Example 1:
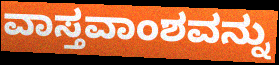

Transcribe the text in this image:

ವಾಸ್ತವಾಂಶವನ್ನು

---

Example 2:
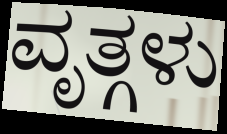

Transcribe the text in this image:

ವೃತ್ಗಳು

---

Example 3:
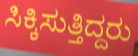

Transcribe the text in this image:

ಸಿಕ್ಕಿಸುತ್ತಿದ್ದರು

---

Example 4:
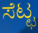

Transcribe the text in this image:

ಸೆಟ್ಟ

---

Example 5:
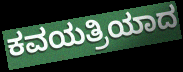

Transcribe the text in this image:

ಕವಯತ್ರಿಯಾದ